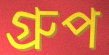
গ্ৰুপ